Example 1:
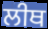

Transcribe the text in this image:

ਲੀਥ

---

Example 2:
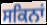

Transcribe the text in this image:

ਸਕਿਨਾਂ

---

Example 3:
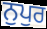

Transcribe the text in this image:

ਨੁਪੁਰ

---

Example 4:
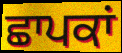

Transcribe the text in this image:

ਛਾਪਕਾਂ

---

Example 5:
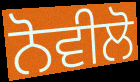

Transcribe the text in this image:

ਨੋਵੀਲੋ